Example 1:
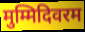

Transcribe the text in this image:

मुम्मिदिवरम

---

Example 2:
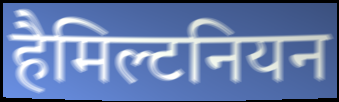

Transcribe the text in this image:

हैमिल्टनियन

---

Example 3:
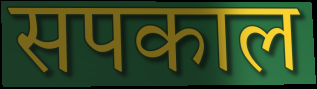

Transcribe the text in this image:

सपकाल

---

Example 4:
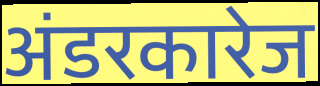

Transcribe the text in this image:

अंडरकारेज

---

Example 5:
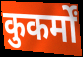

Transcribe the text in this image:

कुकर्मों